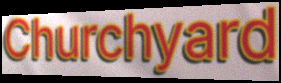
Churchyard